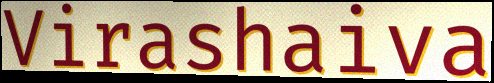
Virashaiva